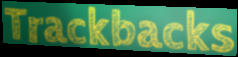
Trackbacks